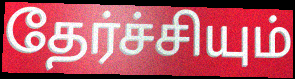
தேர்ச்சியும்